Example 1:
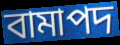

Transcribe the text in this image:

বামাপদ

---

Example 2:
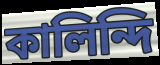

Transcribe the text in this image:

কালিন্দি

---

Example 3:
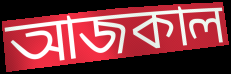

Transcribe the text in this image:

আজকাল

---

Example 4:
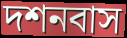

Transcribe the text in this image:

দশনবাস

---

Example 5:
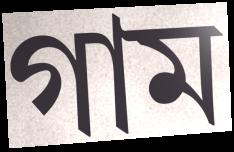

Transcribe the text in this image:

গাম